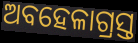
ଅବହେଳାଗ୍ରସ୍ତ